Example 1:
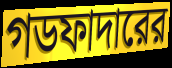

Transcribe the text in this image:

গডফাদারের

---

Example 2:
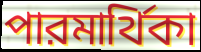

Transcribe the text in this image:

পারমার্থিকা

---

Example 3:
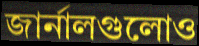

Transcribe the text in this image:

জার্নালগুলোও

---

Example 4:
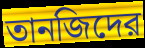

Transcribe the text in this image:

তানজিদের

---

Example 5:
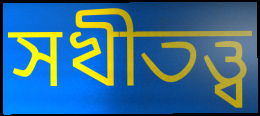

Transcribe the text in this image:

সখীতত্ত্ব